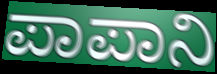
ಪಾಪಾನಿ